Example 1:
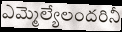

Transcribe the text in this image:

ఎమ్మెల్యేలందరినీ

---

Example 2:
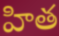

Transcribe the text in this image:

హిత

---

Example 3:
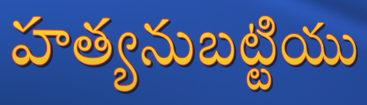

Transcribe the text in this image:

హత్యనుబట్టియు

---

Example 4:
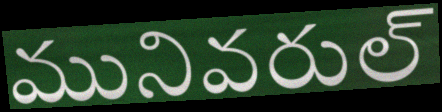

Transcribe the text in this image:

మునివరుల్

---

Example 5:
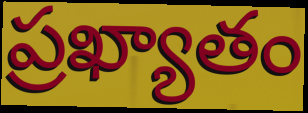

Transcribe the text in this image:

ప్రఖ్యాతం